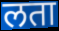
लता